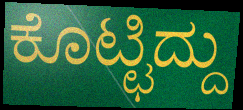
ಕೊಟ್ಟಿದ್ದು